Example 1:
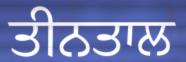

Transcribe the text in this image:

ਤੀਨਤਾਲ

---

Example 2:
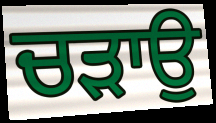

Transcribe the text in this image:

ਚੜਾਉ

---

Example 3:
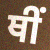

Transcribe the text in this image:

ਥੀਂ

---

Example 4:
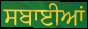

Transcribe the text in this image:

ਸਬਾਈਆਂ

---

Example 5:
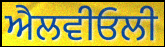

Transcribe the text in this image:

ਐਲਵੀਓਲੀ